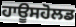
ਹਾਊਸਹੋਲਡ